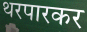
थरपारकर